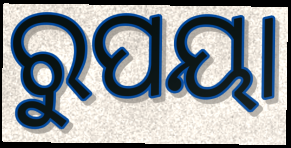
ରୁପୟା